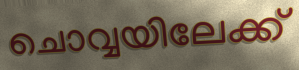
ചൊവ്വയിലേക്ക്